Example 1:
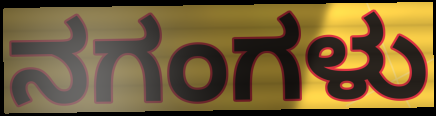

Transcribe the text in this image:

ನಗಂಗಳು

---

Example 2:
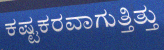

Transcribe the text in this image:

ಕಷ್ಟಕರವಾಗುತ್ತಿತ್ತು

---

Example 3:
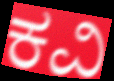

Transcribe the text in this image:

ಕವಿ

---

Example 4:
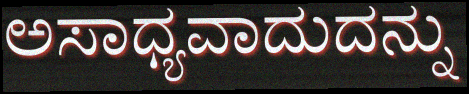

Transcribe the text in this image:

ಅಸಾಧ್ಯವಾದುದನ್ನು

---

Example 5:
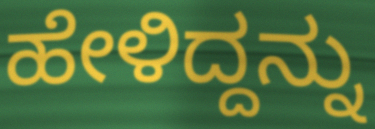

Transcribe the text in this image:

ಹೇಳಿದ್ದನ್ನು